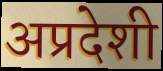
अप्रदेशी